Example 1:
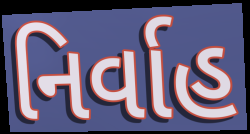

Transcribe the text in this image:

નિર્વાહ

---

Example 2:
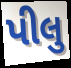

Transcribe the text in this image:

પીલુ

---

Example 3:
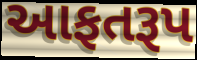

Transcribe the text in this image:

આફતરૂપ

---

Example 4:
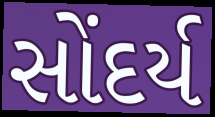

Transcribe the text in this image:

સોંદર્ય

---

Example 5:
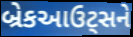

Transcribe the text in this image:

બ્રેકઆઉટ્સને